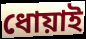
ধোয়াই